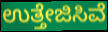
ಉತ್ತೇಜಿಸಿವೆ